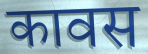
कावस